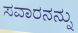
ಸವಾರನನ್ನು